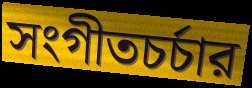
সংগীতচর্চার